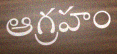
ఆగ్రహం